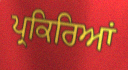
ਪ੍ਰਕਿਰਿਆਂ